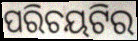
ପରିଚୟଟିର